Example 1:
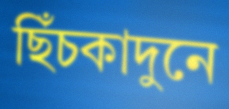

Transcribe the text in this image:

ছিঁচকাদুনে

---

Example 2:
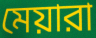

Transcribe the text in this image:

মেয়ারা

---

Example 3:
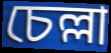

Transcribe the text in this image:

চেল্লা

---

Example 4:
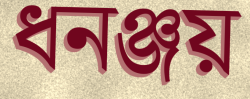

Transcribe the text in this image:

ধনঞ্জয়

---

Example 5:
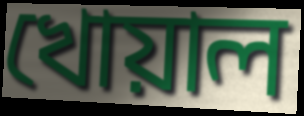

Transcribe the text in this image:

খোয়াল